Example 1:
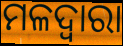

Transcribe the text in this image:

ମଳଦ୍ଵାରା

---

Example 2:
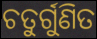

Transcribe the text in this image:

ଚତୁର୍ଗୁଣିତ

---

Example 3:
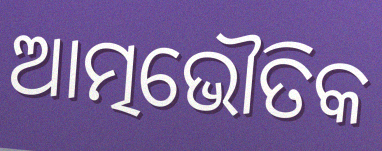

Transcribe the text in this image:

ଆତ୍ମଭୌତିକ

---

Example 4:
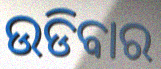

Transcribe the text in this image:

ଉଡିବାର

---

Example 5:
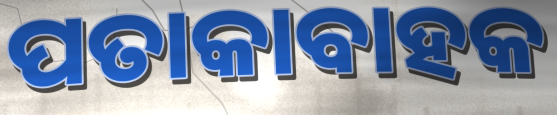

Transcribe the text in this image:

ପତାକାବାହକ